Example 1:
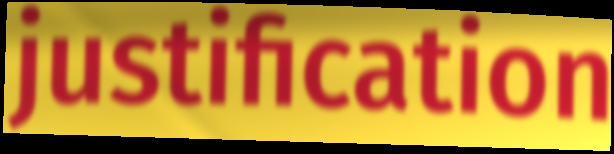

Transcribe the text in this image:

justification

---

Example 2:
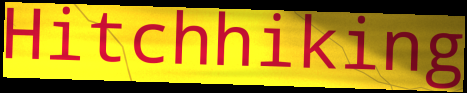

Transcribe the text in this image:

Hitchhiking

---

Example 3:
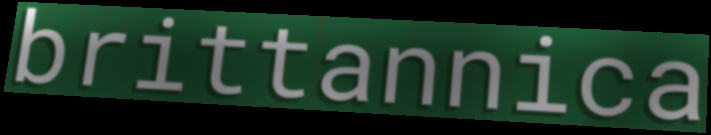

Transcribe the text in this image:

brittannica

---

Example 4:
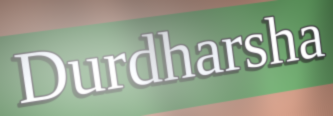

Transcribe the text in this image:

Durdharsha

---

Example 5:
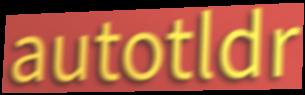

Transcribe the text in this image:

autotldr